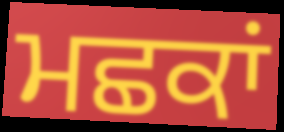
ਮਛਕਾਂ